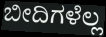
ಬೀದಿಗಳೆಲ್ಲ